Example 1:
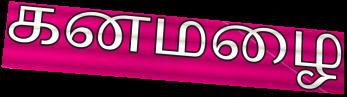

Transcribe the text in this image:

கனமழை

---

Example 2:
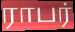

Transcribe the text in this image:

ராபர்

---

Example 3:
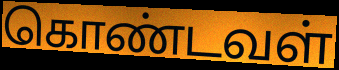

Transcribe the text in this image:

கொண்டவள்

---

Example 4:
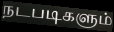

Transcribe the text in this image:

நடபடிகளும்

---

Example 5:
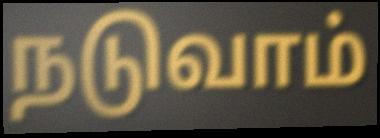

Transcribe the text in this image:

நடுவாம்